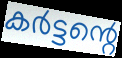
കർട്ടന്റെ